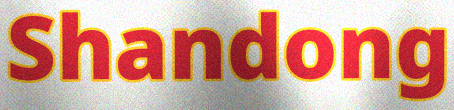
Shandong